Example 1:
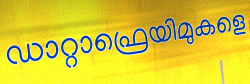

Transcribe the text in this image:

ഡാറ്റാഫ്രെയിമുകളെ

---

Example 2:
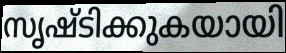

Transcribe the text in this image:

സൃഷ്ടിക്കുകയായി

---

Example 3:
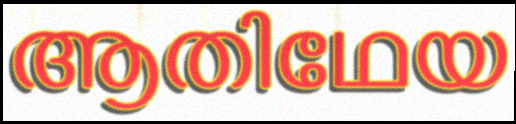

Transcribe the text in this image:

ആതിഥേയ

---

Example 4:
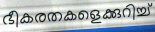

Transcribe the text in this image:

ഭീകരതകളെക്കുറിച്ച്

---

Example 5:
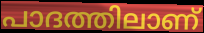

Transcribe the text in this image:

പാദത്തിലാണ്